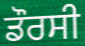
ਡੌਰਸੀ